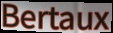
Bertaux